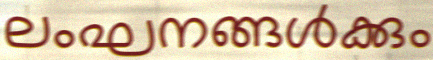
ലംഘനങ്ങൾക്കും